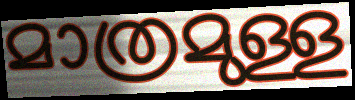
മാത്രമുള്ള